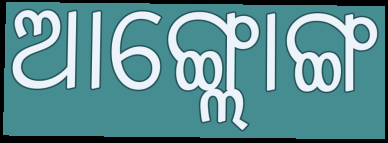
ଆଙ୍ଗ୍ଲୋଙ୍ଗ